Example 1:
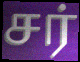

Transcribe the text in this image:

சர்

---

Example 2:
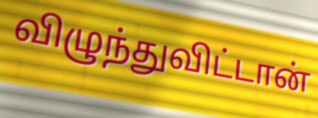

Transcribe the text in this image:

விழுந்துவிட்டான்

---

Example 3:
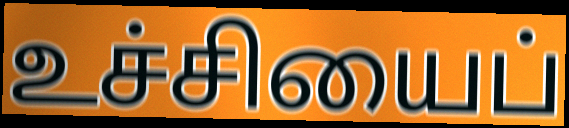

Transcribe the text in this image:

உச்சியைப்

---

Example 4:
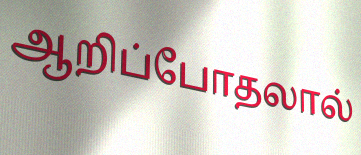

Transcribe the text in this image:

ஆறிப்போதலால்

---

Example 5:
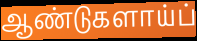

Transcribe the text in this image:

ஆண்டுகளாய்ப்